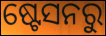
ଷ୍ଟେସନରୁ